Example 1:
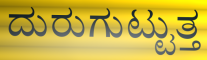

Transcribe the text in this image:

ದುರುಗುಟ್ಟುತ್ತ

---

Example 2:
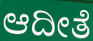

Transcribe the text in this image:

ಆದೀತೆ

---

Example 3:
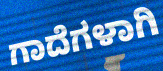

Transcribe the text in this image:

ಗಾದೆಗಳಾಗಿ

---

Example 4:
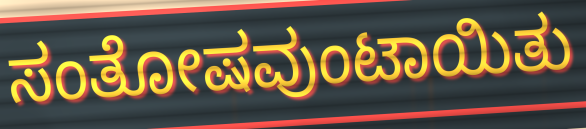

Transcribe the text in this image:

ಸಂತೋಷವುಂಟಾಯಿತು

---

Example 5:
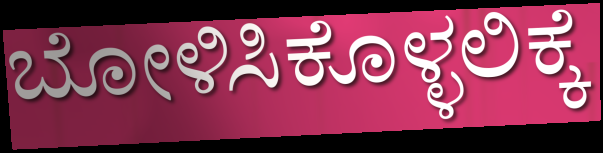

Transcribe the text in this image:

ಬೋಳಿಸಿಕೊಳ್ಳಲಿಕ್ಕೆ